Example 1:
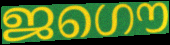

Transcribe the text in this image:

ജഗൌ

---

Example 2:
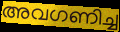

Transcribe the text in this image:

അവഗണിച്ച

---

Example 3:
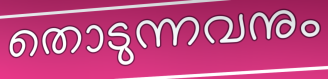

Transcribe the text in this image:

തൊടുന്നവനും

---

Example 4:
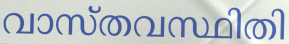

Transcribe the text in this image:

വാസ്തവസ്ഥിതി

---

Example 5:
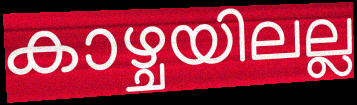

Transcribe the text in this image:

കാഴ്ചയിലല്ല